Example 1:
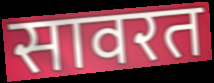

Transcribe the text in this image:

सावरत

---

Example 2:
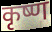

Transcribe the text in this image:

कृष्ण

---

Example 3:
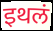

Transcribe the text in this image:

इथलं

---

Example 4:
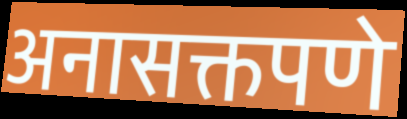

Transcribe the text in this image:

अनासक्तपणे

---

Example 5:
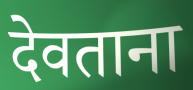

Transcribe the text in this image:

देवताना